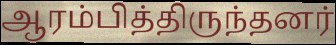
ஆரம்பித்திருந்தனர்